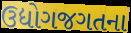
ઉદ્યોગજગતના